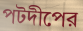
পটদীপের